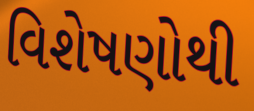
વિશેષણોથી